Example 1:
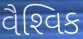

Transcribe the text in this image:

વૈશ્‍વિક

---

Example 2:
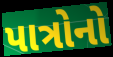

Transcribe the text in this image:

પાત્રોનો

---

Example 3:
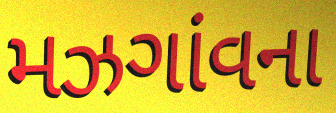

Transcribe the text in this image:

મઝગાંવના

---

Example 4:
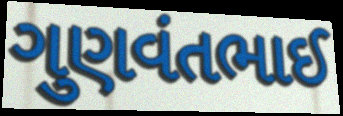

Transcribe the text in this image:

ગુણવંતભાઈ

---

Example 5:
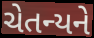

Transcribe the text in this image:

ચેતન્યને